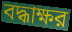
বদ্ধাক্ষর